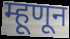
म्हूणून